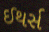
ઈથર્સ